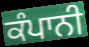
ਕੰਪਾਨੀ